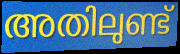
അതിലുണ്ട്